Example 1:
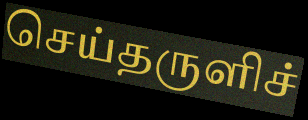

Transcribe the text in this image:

செய்தருளிச்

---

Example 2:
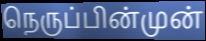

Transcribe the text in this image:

நெருப்பின்முன்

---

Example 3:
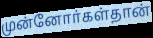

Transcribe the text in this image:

முன்னோர்கள்தான்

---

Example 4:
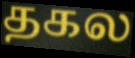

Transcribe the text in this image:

தகல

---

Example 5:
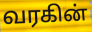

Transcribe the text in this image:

வரகின்